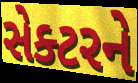
સેક્ટરને